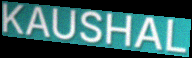
KAUSHAL